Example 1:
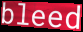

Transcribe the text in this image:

bleed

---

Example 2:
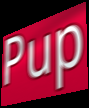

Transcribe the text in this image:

Pup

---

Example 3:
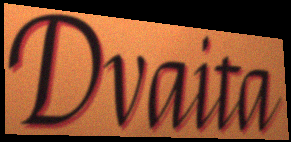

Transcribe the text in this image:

Dvaita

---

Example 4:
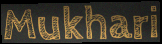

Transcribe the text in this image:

Mukhari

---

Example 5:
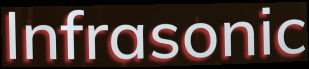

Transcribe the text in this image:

Infrasonic